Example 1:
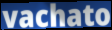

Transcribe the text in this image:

vachato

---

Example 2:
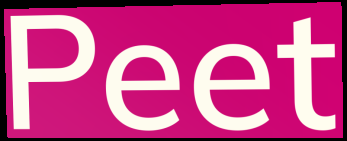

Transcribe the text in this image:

Peet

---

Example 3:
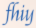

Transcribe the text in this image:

fhiy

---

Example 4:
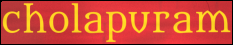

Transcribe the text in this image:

cholapuram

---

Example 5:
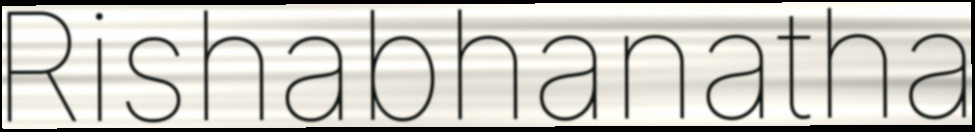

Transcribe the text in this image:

Rishabhanatha